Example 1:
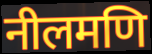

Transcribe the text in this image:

नीलमणि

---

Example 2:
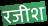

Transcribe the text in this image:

रजीश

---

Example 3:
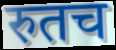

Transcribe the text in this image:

रुतच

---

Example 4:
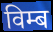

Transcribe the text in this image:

विम्ब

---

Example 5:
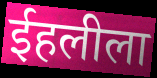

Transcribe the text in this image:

ईहलीला